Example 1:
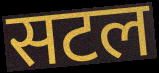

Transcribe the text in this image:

सटल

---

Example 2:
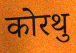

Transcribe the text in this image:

कोरथु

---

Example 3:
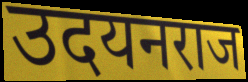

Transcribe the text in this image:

उदयनराज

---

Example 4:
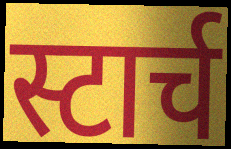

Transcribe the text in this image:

स्टार्च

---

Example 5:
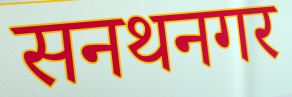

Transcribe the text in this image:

सनथनगर